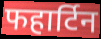
फहार्टिन